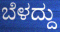
ಬೆಳದ್ದು